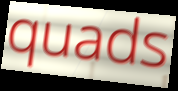
quads